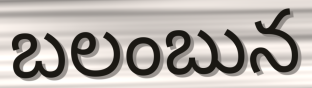
బలంబున